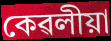
কেৱলীয়া